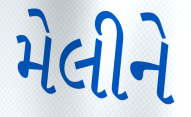
મેલીને